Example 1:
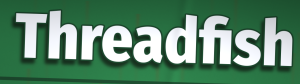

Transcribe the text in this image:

Threadfish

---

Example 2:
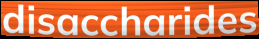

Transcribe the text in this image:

disaccharides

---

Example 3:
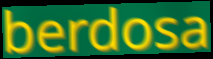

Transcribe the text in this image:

berdosa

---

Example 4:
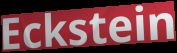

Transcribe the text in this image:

Eckstein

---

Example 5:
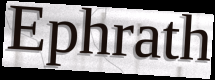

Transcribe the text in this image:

Ephrath